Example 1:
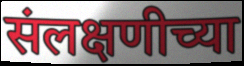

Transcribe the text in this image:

संलक्षणीच्या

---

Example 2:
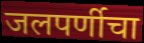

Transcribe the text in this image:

जलपर्णीचा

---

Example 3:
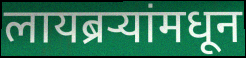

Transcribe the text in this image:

लायब्रऱ्यांमधून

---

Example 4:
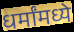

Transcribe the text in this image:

धर्मांमध्ये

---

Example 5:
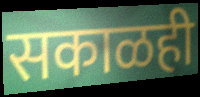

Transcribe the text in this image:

सकाळही